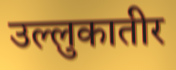
उल्लुकातीर